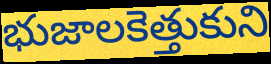
భుజాలకెత్తుకుని